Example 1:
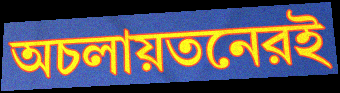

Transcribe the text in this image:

অচলায়তনেরই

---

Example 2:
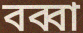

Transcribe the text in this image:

বব্বা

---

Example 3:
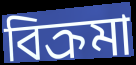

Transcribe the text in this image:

বিক্রমা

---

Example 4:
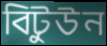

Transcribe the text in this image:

বিটুউন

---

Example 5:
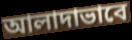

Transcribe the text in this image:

আলাদাভাবে